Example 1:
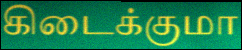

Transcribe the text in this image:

கிடைக்குமா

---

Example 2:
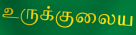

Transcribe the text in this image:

உருக்குலைய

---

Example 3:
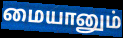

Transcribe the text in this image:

மையானும்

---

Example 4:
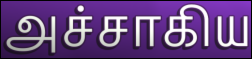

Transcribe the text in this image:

அச்சாகிய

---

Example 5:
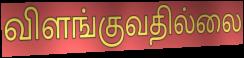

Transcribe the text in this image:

விளங்குவதில்லை